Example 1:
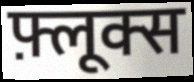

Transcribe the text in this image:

फ़्लूक्स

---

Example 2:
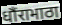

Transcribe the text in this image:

धौंराभाठा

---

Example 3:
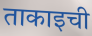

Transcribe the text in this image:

ताकाइची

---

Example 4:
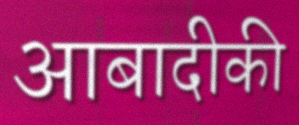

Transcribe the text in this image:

आबादीकी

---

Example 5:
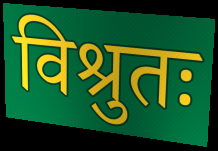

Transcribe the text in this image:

विश्रुतः